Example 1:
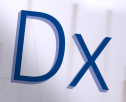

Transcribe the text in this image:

Dx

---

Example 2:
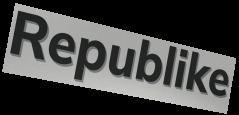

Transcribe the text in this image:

Republike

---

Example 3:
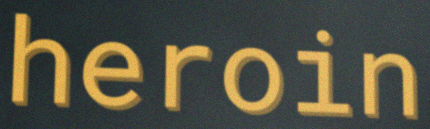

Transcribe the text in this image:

heroin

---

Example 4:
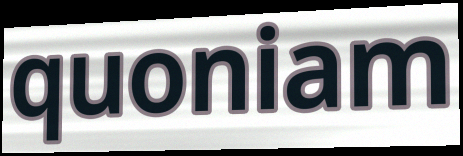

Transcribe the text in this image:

quoniam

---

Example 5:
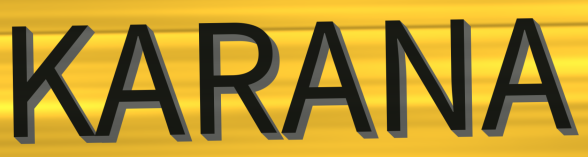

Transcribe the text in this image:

KARANA